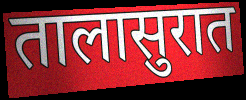
तालासुरात